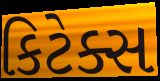
કિટેક્સ